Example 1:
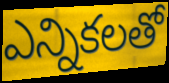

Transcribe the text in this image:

ఎన్నికలతో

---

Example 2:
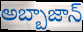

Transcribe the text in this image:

అబ్బాజాన్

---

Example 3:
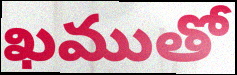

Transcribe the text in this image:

ఖముతో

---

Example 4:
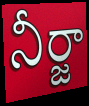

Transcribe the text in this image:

నీర్జా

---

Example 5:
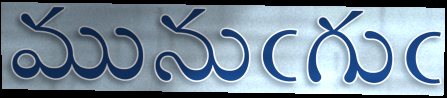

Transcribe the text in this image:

మునుఁగుఁ